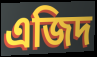
এজিদ